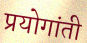
प्रयोगांती